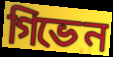
গিভেন